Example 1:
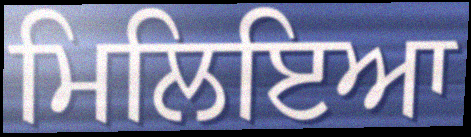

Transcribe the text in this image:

ਮਿਲਿਇਆ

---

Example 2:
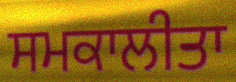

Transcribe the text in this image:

ਸਮਕਾਲੀਤਾ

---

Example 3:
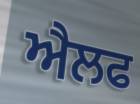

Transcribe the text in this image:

ਐਲਫ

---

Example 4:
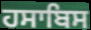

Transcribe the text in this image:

ਹਸਾਬਿਸ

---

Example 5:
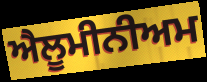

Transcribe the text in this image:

ਐਲੂਮੀਨੀਅਮ